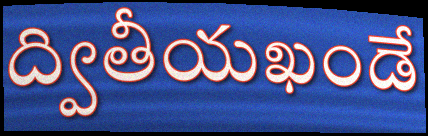
ద్వితీయఖండే